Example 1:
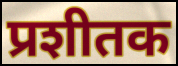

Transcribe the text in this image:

प्रशीतक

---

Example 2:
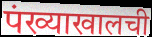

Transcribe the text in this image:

पंख्याखालची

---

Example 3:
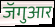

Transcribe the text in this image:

जॅगुआर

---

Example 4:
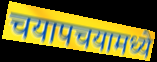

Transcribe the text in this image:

चयापचयामध्ये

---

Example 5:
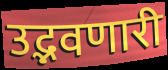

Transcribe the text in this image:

उद्भवणारी